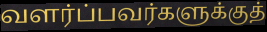
வளர்ப்பவர்களுக்குத்